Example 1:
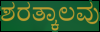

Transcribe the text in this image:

ಶರತ್ಕಾಲವು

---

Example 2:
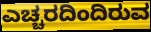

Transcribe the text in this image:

ಎಚ್ಚರದಿಂದಿರುವ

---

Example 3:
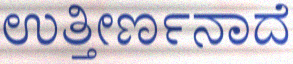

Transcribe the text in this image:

ಉತ್ತೀರ್ಣನಾದೆ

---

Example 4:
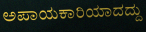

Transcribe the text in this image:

ಅಪಾಯಕಾರಿಯಾದದ್ದು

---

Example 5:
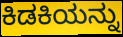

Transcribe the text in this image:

ಕಿಡಕಿಯನ್ನು